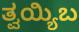
ತ್ವಯ್ಯಿಬ